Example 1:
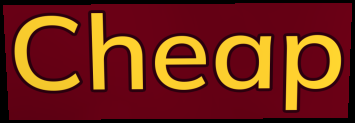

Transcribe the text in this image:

Cheap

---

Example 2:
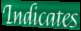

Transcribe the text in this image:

Indicates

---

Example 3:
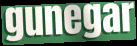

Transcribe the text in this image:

gunegar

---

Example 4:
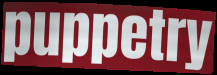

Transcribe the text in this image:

puppetry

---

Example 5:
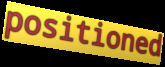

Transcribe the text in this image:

positioned